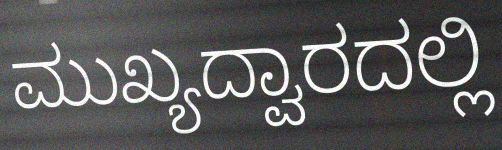
ಮುಖ್ಯದ್ವಾರದಲ್ಲಿ